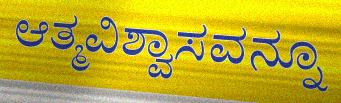
ಆತ್ಮವಿಶ್ವಾಸವನ್ನೂ